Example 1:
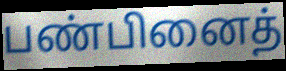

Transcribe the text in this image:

பண்பினைத்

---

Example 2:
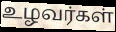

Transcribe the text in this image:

உழவர்கள்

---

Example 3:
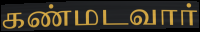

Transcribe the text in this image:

கண்மடவார்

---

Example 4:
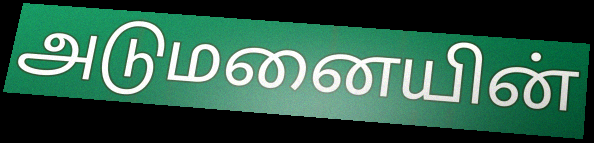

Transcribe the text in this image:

அடுமனையின்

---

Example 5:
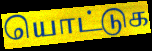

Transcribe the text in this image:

யொட்டுக